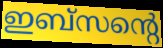
ഇബ്സന്റെ